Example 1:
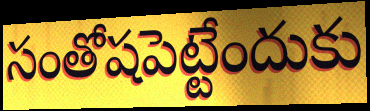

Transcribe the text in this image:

సంతోషపెట్టేందుకు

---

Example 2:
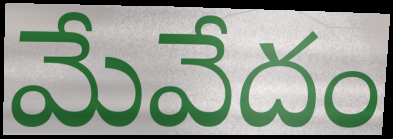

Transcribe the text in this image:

మేవేదం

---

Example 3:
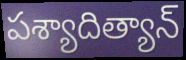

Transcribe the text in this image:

పశ్యాదిత్యాన్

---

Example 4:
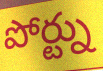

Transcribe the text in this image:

పోర్ట్ను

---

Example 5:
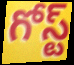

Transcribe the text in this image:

గోస్ట్